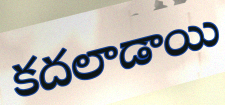
కదలాడాయి